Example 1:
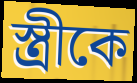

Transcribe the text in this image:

স্ত্রীকে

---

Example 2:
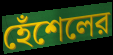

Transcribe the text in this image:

হেঁশেলের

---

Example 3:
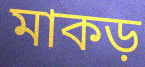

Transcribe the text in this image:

মাকড়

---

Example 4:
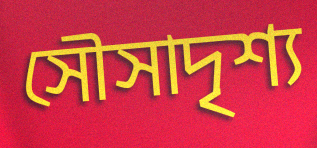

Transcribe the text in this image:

সৌসাদৃশ্য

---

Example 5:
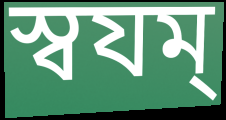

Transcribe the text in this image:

স্বযম্